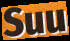
Suu